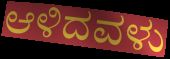
ಆಳಿದವಳು